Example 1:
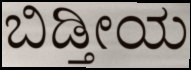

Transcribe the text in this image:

ಬಿಡ್ತೀಯ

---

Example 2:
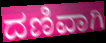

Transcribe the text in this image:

ದಣಿವಾಗಿ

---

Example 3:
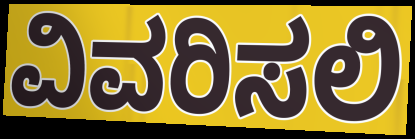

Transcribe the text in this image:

ವಿವರಿಸಲಿ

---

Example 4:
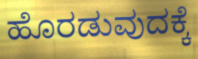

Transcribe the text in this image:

ಹೊರಡುವುದಕ್ಕೆ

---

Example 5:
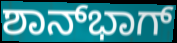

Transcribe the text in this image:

ಶಾನ್‍ಭಾಗ್